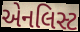
એનલિસ્ટ